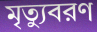
মৃত্যুবরণ